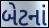
બેટનાં